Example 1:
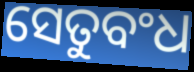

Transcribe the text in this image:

ସେତୁବଂଧ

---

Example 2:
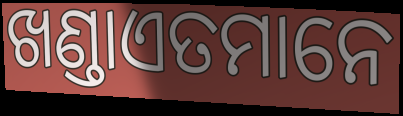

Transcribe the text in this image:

ଖଣ୍ଡାଏତମାନେ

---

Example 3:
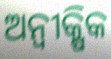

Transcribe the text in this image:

ଅନ୍ୱୀକ୍ଷିକ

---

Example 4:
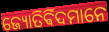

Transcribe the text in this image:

ଜ୍ୟୋତିର୍ଵିଦମାନେ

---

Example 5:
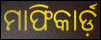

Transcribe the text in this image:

ମାଫିକାର୍ଡ଼